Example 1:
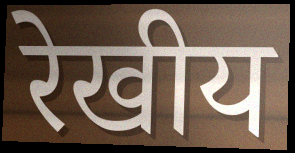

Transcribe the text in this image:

रेखीय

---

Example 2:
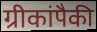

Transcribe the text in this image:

ग्रीकांपैकी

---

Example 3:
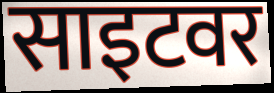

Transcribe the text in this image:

साइटवर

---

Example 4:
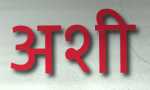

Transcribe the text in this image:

अशी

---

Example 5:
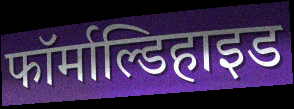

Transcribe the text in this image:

फॉर्माल्डिहाइड